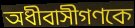
অধীবাসীগণকে